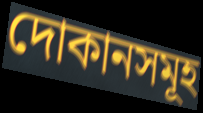
দোকানসমূহ